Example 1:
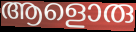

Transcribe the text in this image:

ആളൊരു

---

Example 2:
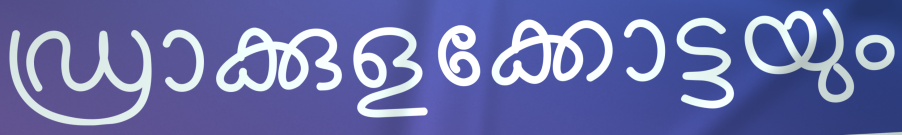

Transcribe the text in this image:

ഡ്രാക്കുളക്കോട്ടയും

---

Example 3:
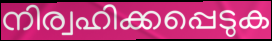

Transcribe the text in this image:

നിര്വഹിക്കപ്പെടുക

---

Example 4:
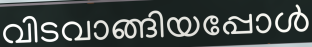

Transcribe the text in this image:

വിടവാങ്ങിയപ്പോൾ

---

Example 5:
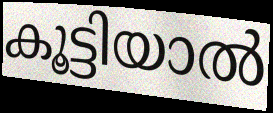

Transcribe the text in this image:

കൂട്ടിയാൽ